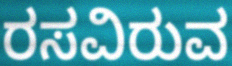
ರಸವಿರುವ